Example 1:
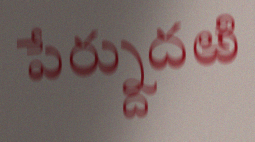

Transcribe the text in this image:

పేర్న్దుదఱి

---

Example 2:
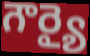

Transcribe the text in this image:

గౌర్యై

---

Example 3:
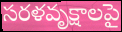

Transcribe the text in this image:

సరళవృక్షాలపై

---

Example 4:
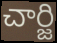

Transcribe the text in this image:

చార్జి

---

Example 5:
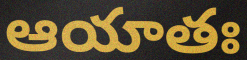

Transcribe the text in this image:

ఆయాతః